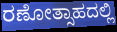
ರಣೋತ್ಸಾಹದಲ್ಲಿ